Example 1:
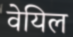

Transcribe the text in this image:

वेयिल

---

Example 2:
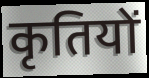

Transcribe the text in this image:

कृतियों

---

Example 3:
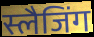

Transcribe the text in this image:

स्लैजिंग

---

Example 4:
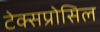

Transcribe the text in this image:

टेक्सप्रोसिल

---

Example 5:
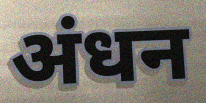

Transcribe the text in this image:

अंधन